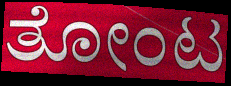
ತೋಂಟ